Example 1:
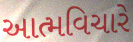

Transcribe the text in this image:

આત્મવિચારે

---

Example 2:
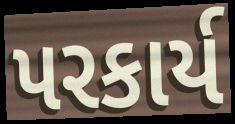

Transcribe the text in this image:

પરકાર્ય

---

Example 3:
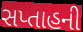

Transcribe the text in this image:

સપ્તાહની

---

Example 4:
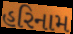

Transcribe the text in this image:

હરિનામ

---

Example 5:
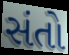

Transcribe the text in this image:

સંતો